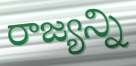
రాజ్యన్ని